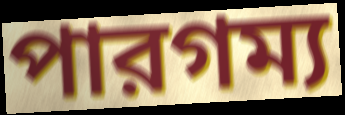
পারগম্য